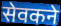
सेवकने